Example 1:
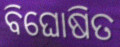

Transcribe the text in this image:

ବିଘୋଷିତ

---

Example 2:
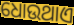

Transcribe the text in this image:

ଧୋଉଥାଏ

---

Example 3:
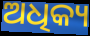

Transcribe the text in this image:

ଅଧିକ୍ୟ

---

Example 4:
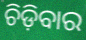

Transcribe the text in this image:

ଚିଡ଼ିବାର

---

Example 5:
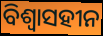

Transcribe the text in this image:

ବିଶ୍ୱାସହୀନ